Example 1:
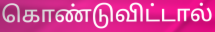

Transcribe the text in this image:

கொண்டுவிட்டால்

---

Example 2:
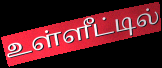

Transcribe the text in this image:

உள்ளீட்டில்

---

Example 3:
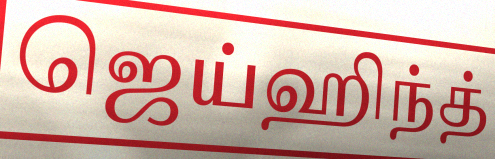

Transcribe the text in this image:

ஜெய்ஹிந்த்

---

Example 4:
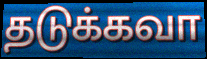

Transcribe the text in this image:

தடுக்கவா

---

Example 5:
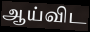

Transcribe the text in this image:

ஆய்விட